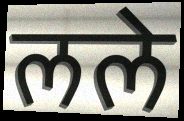
लले